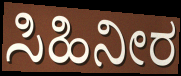
ಸಿಹಿನೀರ